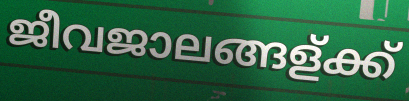
ജീവജാലങ്ങള്ക്ക്